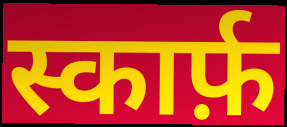
स्कार्फ़